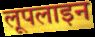
लूपलाइन